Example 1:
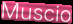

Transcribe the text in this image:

Muscio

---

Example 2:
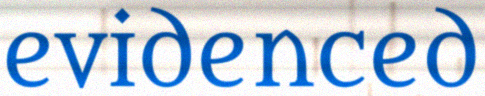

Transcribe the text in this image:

evidenced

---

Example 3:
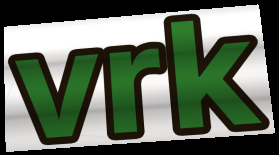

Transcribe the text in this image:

vrk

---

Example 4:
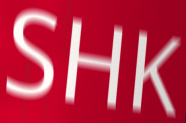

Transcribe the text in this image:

SHK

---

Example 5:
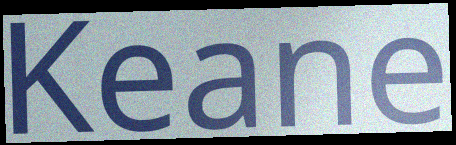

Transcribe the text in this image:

Keane